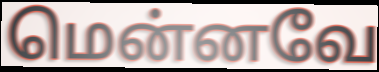
மென்னவே